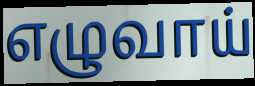
எழுவாய்